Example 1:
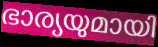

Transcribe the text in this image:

ഭാര്യയുമായി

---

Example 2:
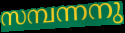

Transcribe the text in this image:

സമ്പന്നനു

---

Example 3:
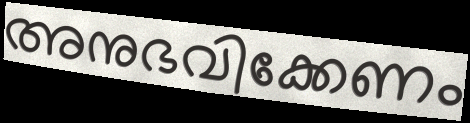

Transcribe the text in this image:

അനുഭവിക്കേണം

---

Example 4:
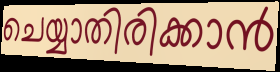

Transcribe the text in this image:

ചെയ്യാതിരിക്കാൻ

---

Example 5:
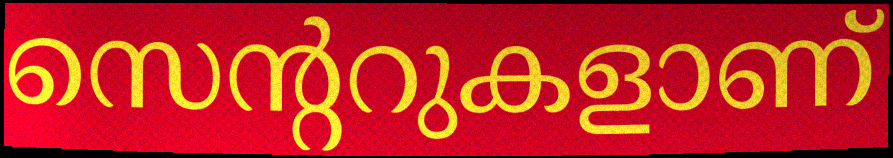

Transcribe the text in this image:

സെന്ററുകളാണ്